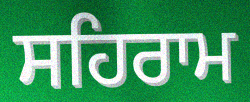
ਸਹਿਰਾਮ